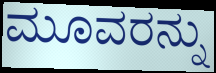
ಮೂವರನ್ನು